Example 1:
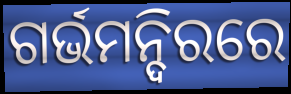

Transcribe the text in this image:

ଗର୍ଭମନ୍ଦିରରେ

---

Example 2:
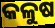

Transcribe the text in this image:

କଳୁଷ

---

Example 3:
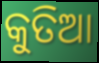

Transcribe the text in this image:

କୁତିଆ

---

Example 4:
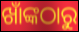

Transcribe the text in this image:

ଖାଁଙ୍କଠାରୁ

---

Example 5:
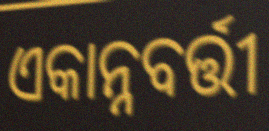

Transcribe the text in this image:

ଏକାନ୍ନବର୍ତ୍ତୀ